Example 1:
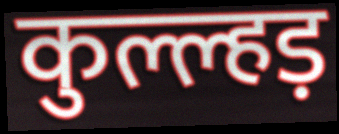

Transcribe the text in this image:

कुल्ल्हड़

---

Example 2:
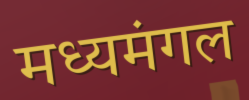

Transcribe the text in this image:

मध्यमंगल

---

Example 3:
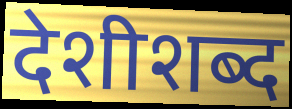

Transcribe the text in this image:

देशीशब्द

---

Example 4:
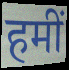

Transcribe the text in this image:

हमीं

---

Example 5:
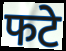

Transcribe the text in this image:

फटे